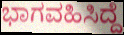
ಭಾಗವಹಿಸಿದ್ದೆ